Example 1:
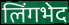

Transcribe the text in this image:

लिंगभेद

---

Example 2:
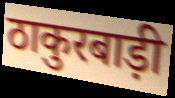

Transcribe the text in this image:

ठाकुरबाड़ी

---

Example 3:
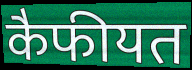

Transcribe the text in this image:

कैफीयत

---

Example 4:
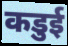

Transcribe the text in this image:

कडुई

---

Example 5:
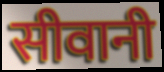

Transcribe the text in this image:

सीवानी